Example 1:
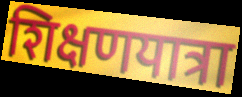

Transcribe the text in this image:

शिक्षणयात्रा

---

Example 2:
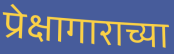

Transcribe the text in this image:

प्रेक्षागाराच्या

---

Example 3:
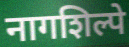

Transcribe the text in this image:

नागशिल्पे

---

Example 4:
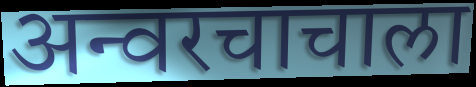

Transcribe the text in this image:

अन्वरचाचाला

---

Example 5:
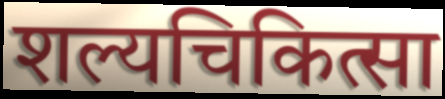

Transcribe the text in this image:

शल्‍यचिकित्‍सा